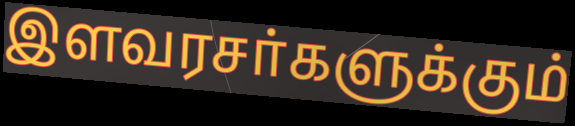
இளவரசர்களுக்கும்